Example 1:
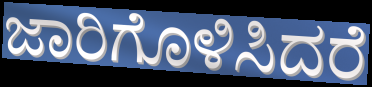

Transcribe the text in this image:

ಜಾರಿಗೊಳಿಸಿದರೆ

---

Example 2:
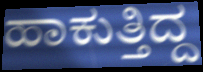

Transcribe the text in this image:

ಹಾಕುತ್ತಿದ್ದ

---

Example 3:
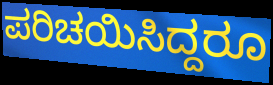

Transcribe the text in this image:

ಪರಿಚಯಿಸಿದ್ದರೂ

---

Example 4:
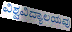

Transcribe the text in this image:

ವಿಶ್ವವಿದ್ಯಾಲಯವು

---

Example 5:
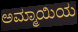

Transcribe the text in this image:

ಅಮ್ಮಾಯಿಯ